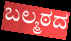
ಬಲ್ಮಠದ